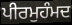
ਪੀਰਮੁਹੰਮਦ